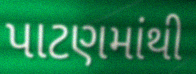
પાટણમાંથી